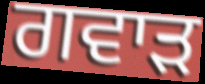
ਗਵਾੜ